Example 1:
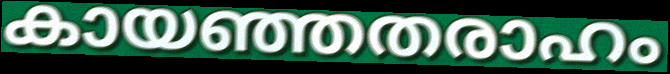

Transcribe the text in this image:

കായഞ്ഞതരാഹം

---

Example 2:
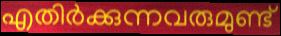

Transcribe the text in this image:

എതിർക്കുന്നവരുമുണ്ട്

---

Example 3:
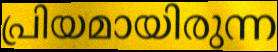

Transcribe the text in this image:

പ്രിയമായിരുന്ന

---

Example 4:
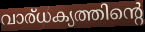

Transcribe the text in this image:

വാര്ധക്യത്തിന്റെ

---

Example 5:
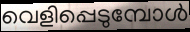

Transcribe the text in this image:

വെളിപ്പെടുമ്പോൾ